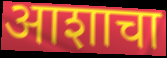
आशाचा